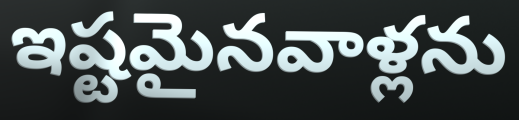
ఇష్టమైనవాళ్లను